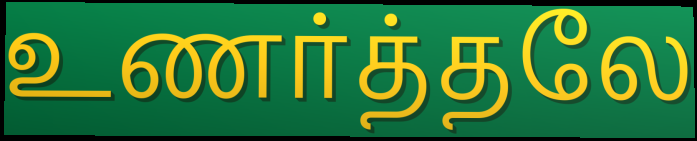
உணர்த்தலே